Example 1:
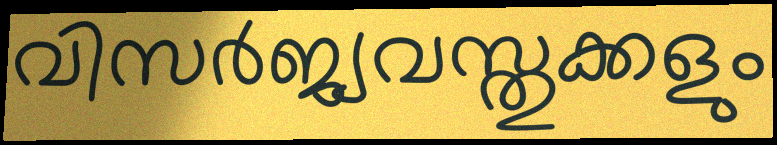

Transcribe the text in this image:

വിസർജ്യവസ്തുക്കളും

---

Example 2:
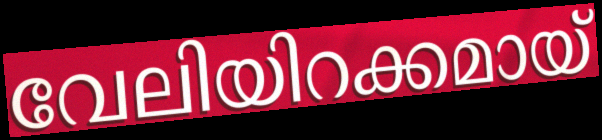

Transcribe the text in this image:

വേലിയിറക്കമായ്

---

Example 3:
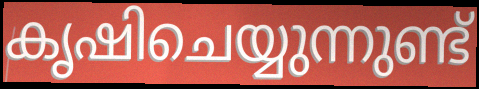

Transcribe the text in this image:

കൃഷിചെയ്യുന്നുണ്ട്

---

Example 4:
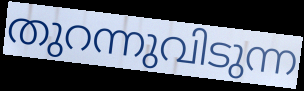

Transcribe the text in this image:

തുറന്നുവിടുന്ന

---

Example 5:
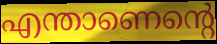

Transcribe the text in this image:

എന്താണെന്റെ